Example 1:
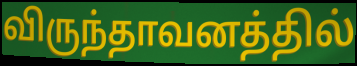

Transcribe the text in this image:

விருந்தாவனத்தில்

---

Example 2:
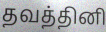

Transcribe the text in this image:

தவத்தினி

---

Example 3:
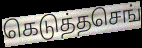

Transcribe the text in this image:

கெடுத்தசெங்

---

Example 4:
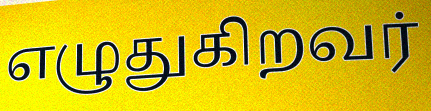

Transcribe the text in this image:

எழுதுகிறவர்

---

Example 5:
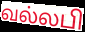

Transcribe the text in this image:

வல்லபி